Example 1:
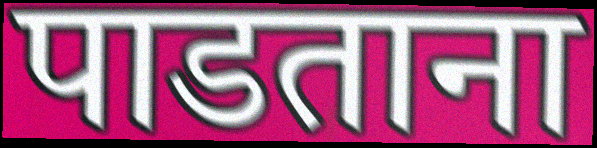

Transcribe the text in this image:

पाडताना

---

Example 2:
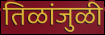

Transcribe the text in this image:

तिळांजुळी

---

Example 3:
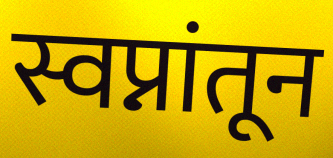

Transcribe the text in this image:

स्वप्नांतून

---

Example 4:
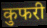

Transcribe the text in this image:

कुफरी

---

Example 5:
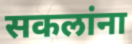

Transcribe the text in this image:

सकलांना